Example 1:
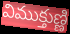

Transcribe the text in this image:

విముక్తుణ్ణి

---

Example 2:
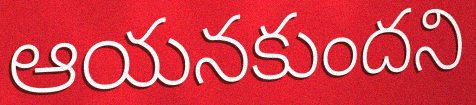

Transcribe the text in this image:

ఆయనకుందని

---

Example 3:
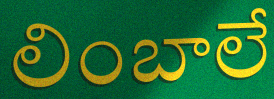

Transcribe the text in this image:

లింబాలే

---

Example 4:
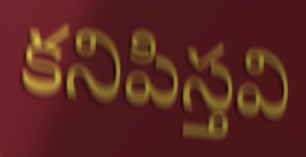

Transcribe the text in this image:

కనిపిస్తవి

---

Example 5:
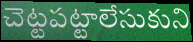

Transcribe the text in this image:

చెట్టపట్టాలేసుకుని